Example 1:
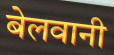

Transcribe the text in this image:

बेलवानी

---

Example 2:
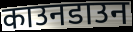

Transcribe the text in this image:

काउनडाउन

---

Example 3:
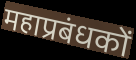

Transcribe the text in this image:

महाप्रबंधकों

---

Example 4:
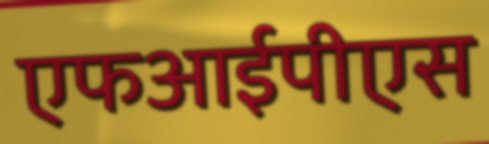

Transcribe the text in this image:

एफआईपीएस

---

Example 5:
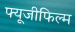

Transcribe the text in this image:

फ्यूजीफिल्म